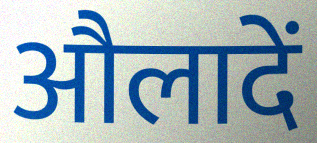
औलादें